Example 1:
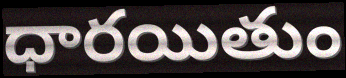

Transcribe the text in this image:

ధారయితుం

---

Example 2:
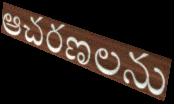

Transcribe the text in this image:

ఆచరణలను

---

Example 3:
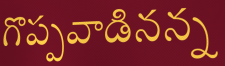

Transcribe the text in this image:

గొప్పవాడినన్న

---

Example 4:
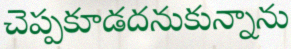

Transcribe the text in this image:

చెప్పకూడదనుకున్నాను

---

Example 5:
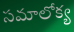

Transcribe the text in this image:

సమాలోక్య